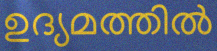
ഉദ്യമത്തിൽ